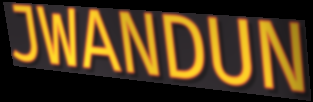
JWANDUN